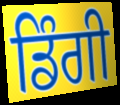
ਡਿੰਗੀ